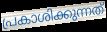
പ്രകാശിക്കുന്നത്